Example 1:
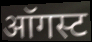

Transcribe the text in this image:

ऑगस्ट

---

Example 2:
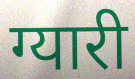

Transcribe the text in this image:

ग्यारी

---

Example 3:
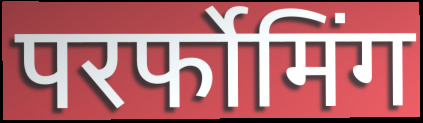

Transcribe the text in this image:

परर्फोमिंग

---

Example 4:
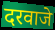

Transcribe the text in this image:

दरवाजे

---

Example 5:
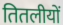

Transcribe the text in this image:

तितलीयों